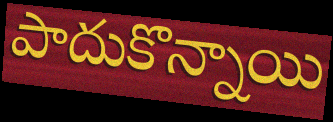
పాదుకొన్నాయి